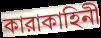
কারাকাহিনী